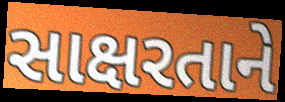
સાક્ષરતાને